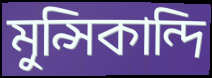
মুন্সিকান্দি